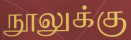
நூலுக்கு